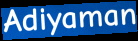
Adiyaman